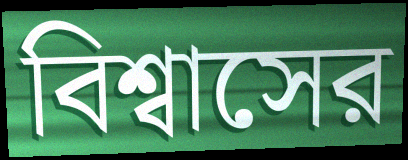
বিশ্বাসের